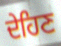
ਦੇਹਿਣ